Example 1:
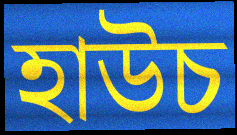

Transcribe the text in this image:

হাউচ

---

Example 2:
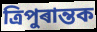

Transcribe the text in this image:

ত্ৰিপুৰান্তক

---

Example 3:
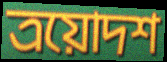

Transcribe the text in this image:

ত্ৰয়োদশ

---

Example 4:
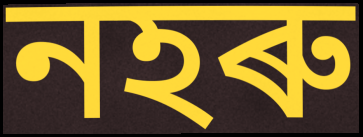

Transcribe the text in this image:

নহৰু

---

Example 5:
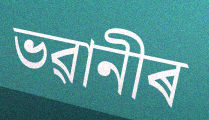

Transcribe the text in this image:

ভৱানীৰ